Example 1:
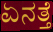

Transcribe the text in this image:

ಏನತ್ತೆ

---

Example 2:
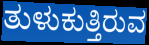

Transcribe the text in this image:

ತುಳುಕುತ್ತಿರುವ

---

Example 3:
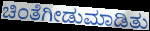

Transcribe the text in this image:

ಚಿಂತೆಗೀಡುಮಾಡಿತು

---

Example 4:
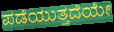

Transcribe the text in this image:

ಪಡೆಯುತ್ತದೆಯೇ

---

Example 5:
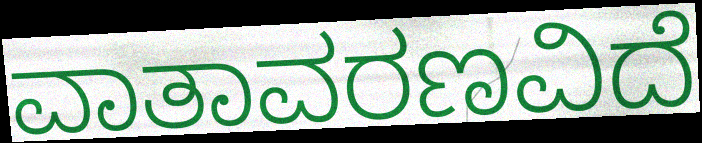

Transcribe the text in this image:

ವಾತಾವರಣವಿದೆ